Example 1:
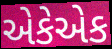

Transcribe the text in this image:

એકેએક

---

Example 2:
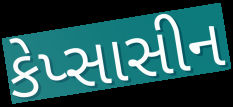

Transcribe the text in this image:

કેપ્સાસીન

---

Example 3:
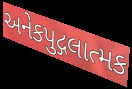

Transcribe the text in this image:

અનેકપુદ્ગલાત્મક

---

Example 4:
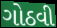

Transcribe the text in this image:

ગોઠવી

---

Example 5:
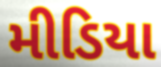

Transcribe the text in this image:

મીડિયા